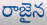
రాజైన